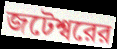
জটেশ্বরের